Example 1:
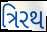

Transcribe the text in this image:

ત્રિરથ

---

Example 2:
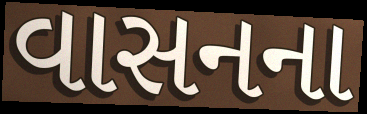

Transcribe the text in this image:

વાસનના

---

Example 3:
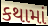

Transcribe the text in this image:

કથામાં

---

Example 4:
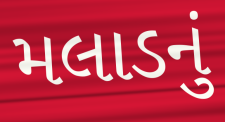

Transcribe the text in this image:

મલાડનું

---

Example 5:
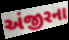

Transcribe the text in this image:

અંજીરના